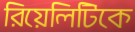
রিয়েলিটিকে